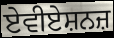
ਏਵੀਏਸ਼ਨਜ਼